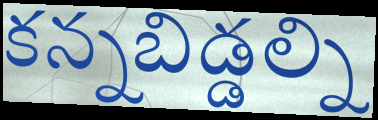
కన్నబిడ్డల్ని